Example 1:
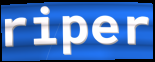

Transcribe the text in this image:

riper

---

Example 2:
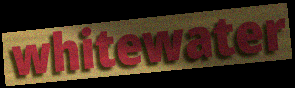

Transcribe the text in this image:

whitewater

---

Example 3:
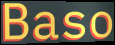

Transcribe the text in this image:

Baso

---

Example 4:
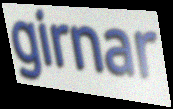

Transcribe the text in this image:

girnar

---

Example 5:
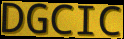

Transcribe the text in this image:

DGCIC